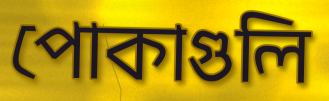
পোকাগুলি